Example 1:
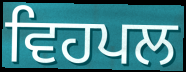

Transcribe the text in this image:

ਵਿਹਪਲ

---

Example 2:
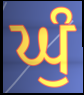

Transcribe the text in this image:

ਘੁੰ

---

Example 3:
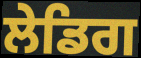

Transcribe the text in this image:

ਲੇਡਿਗ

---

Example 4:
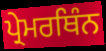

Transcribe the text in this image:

ਪ੍ਰੇਮਰਥਿੰਨ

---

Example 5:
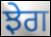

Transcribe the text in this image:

ਝੇਗ